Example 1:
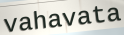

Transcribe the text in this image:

vahavata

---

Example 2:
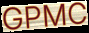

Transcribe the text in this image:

GPMC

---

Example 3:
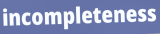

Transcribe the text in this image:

incompleteness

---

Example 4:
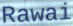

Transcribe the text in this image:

Rawai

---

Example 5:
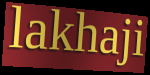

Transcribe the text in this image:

lakhaji